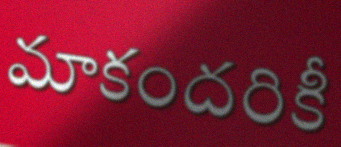
మాకందరికీ